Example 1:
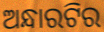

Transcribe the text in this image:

ଅନ୍ଧାରଟିର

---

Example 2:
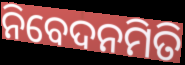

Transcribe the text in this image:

ନିବେଦନମିତି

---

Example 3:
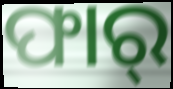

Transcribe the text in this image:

ଫାର୍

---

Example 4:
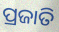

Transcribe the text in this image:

ପ୍ରଜାତି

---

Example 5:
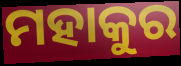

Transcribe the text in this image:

ମହାକୁର